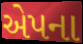
એપના